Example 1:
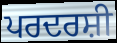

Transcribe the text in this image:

ਪਰਦਰਸ਼ੀ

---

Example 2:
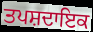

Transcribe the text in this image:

ਤਪਸ਼ਦਾਇਕ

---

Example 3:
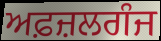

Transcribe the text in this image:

ਅਫ਼ਜ਼ਲਗੰਜ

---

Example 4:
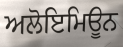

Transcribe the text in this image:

ਅਲੋਇਮਿਊਨ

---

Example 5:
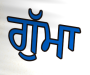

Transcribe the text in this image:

ਗੁੱਮਾ